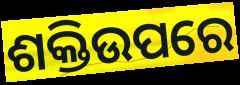
ଶକ୍ତିଉପରେ